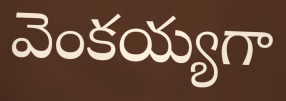
వెంకయ్యగా